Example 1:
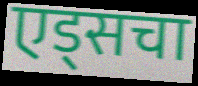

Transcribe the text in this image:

एड्सचा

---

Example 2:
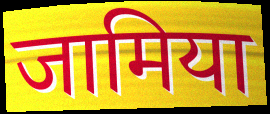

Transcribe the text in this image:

जामिया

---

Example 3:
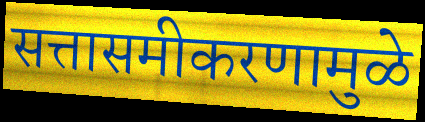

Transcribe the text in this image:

सत्तासमीकरणामुळे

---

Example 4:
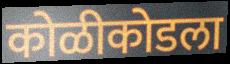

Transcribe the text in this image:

कोळीकोडला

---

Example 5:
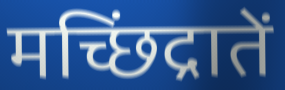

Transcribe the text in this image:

मच्छिंद्रातें